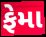
ફેમા